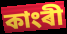
কাংৰী